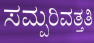
ಸಮ್ಪರಿವತ್ತತಿ